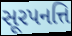
સૂરપનત્તિ